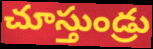
చూస్తుండ్రు